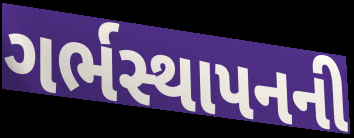
ગર્ભસ્થાપનની